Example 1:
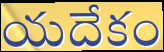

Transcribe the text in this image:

యదేకం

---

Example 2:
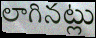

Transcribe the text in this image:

లాగినట్లు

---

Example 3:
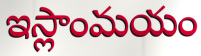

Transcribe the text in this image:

ఇస్లాంమయం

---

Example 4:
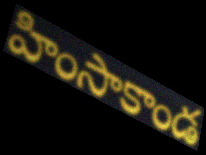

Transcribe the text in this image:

హింసాకాండ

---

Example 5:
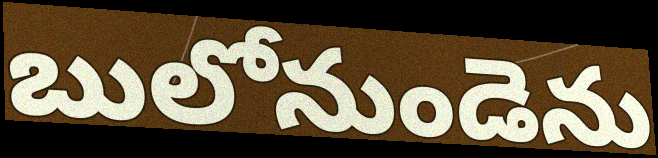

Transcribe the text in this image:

బులోనుండెను